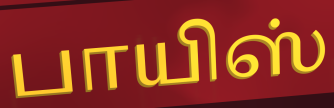
பாயிஸ்